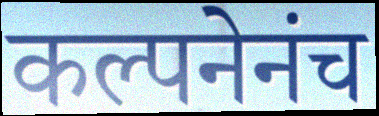
कल्पनेनंच